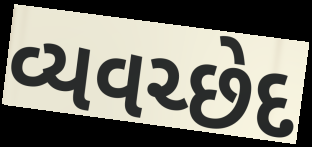
વ્યવચ્છેદ